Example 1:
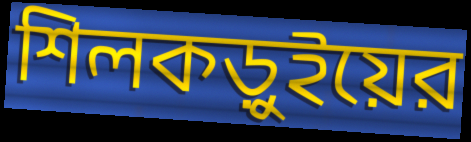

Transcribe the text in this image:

শিলকড়ুইয়ের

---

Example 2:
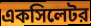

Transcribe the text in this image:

একসিলেটর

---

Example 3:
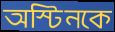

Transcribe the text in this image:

অস্টিনকে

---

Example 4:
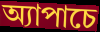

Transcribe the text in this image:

অ্যাপাচে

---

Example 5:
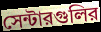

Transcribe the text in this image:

সেন্টারগুলির